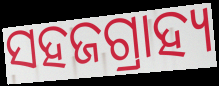
ସହଜଗ୍ରାହ୍ୟ